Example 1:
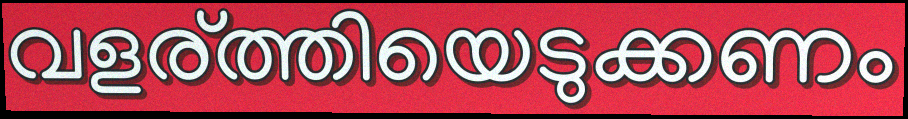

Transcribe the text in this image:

വളര്ത്തിയെടുക്കണം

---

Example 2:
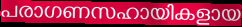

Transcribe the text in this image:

പരാഗണസഹായികളായ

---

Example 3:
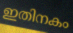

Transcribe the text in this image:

ഇതിനകം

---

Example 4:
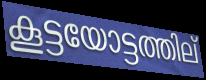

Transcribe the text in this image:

കൂട്ടയോട്ടത്തില്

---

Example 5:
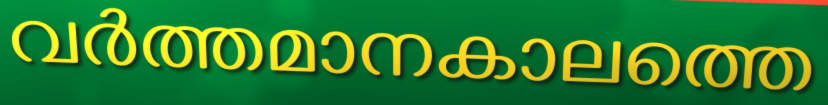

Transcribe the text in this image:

വർത്തമാനകാലത്തെ